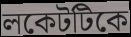
লকেটটিকে